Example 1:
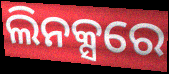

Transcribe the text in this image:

ଲିନକ୍ସରେ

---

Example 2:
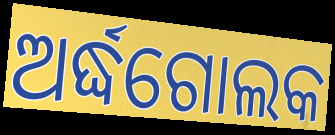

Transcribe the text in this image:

ଅର୍ଦ୍ଧଗୋଲକ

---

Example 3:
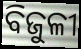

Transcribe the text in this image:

ବିଜୁଳୀ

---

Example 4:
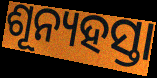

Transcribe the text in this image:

ଶୂନ୍ୟହସ୍ତା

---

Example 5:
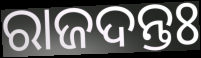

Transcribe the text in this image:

ରାଜଦନ୍ତଃ